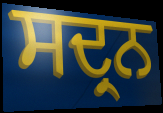
ਸਦ੍ਰਨ